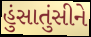
હુંસાતુંસીને